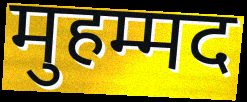
मुहम्मद